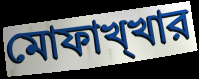
মোফাখ্খার